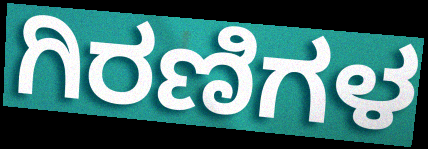
ಗಿರಣಿಗಳ